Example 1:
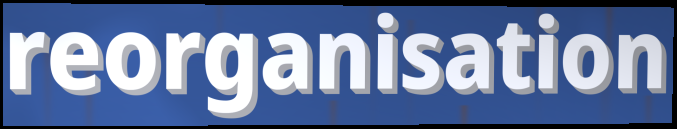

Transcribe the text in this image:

reorganisation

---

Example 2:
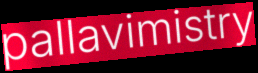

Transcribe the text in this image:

pallavimistry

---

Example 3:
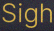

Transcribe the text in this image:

Sigh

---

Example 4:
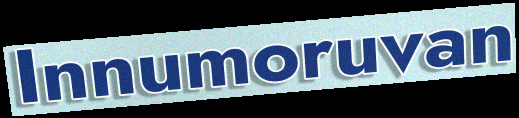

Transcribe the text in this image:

Innumoruvan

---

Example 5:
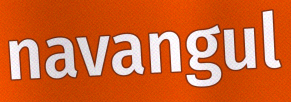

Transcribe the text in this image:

navangul